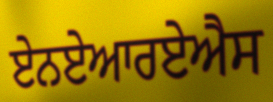
ਏਨਏਆਰਏਐਸ